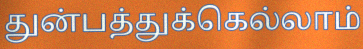
துன்பத்துக்கெல்லாம்